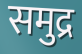
समुद्र